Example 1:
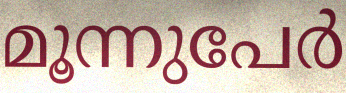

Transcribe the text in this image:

മൂന്നുപേർ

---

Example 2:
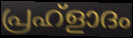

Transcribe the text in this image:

പ്രഹ്ളാദം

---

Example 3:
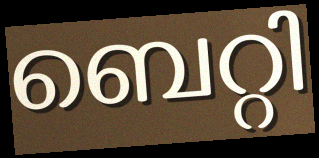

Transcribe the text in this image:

ബെറ്റി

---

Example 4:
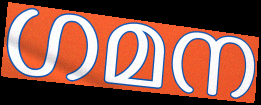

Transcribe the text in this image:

ഗമന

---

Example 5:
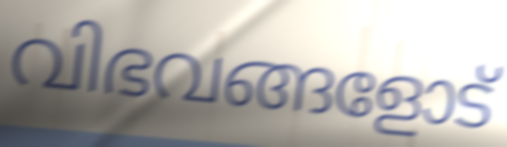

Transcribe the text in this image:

വിഭവങ്ങളോട്